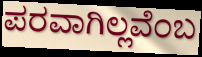
ಪರವಾಗಿಲ್ಲವೆಂಬ